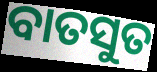
ବାତସୁତ